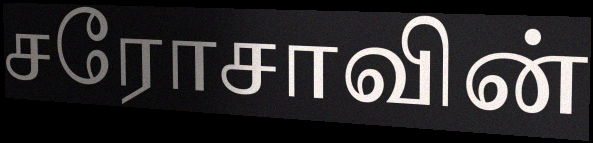
சரோசாவின்